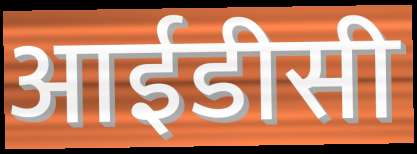
आईडीसी